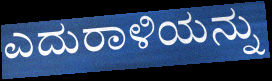
ಎದುರಾಳಿಯನ್ನು